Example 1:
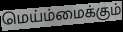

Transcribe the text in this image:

மெய்ம்மைக்கும்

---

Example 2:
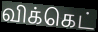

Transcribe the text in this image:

விக்கெட்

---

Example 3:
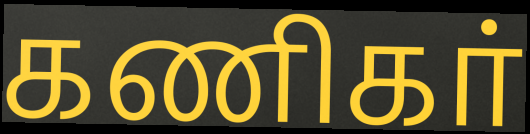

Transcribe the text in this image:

கணிகர்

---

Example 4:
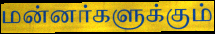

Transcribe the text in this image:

மன்னர்களுக்கும்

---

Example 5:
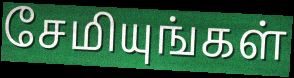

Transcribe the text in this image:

சேமியுங்கள்